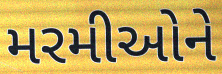
મરમીઓને